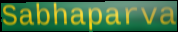
Sabhaparva